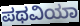
ಪಥವಿಯಾ